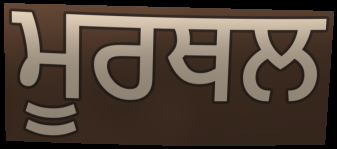
ਮੂਰਥਲ